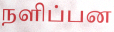
நளிப்பன